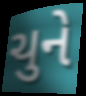
ચુને